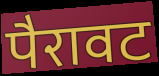
पैरावट